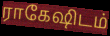
ராகேஷிடம்